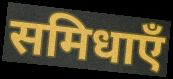
समिधाएँ